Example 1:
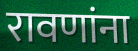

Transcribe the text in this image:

रावणांना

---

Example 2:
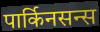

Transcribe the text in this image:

पार्किनसन्स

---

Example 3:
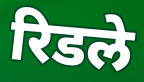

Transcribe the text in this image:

रिडले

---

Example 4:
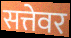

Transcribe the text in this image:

सत्तेवर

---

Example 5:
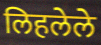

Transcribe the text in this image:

लिहलेले